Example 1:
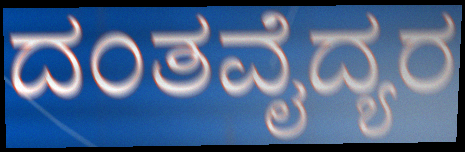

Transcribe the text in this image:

ದಂತವೈದ್ಯರ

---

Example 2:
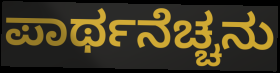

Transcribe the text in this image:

ಪಾರ್ಥನೆಚ್ಚನು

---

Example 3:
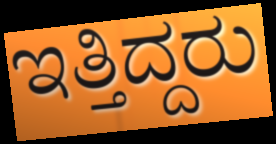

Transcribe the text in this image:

ಇತ್ತಿದ್ದರು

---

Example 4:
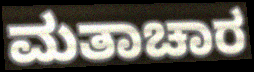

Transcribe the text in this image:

ಮತಾಚಾರ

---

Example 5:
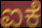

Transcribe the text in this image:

ಐಕೆ